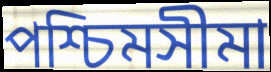
পশ্চিমসীমা